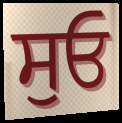
ਸੁਓ